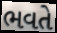
ભવતે